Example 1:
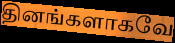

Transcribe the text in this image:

தினங்களாகவே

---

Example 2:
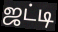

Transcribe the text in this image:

ஜட்டி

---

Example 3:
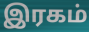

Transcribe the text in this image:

இரகம்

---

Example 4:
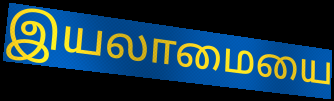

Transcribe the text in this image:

இயலாமையை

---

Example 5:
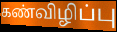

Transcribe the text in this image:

கண்விழிப்பு